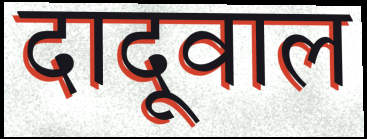
दादूवाल